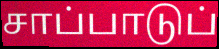
சாப்பாடுப்